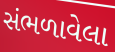
સંભળાવેલા